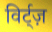
विर्ट्ज़